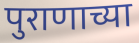
पुराणाच्या